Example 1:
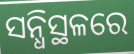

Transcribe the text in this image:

ସନ୍ଧିସ୍ଥଳରେ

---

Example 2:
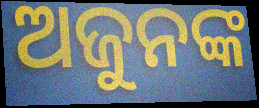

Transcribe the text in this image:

ଅଜୁନଙ୍କ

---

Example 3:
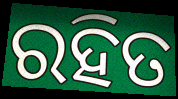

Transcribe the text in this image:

ରହିତ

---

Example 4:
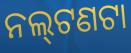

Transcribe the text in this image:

ନଲ୍‍ଟଣଟା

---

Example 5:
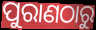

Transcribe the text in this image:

ପୁରାଣଠାରୁ